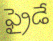
ఫ్రైడే